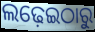
ଲଢ଼େଇଠାରୁ